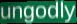
ungodly